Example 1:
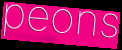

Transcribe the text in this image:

peons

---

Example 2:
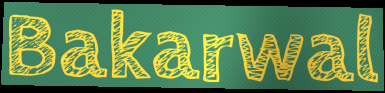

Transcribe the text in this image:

Bakarwal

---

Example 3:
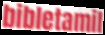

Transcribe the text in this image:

bibletamil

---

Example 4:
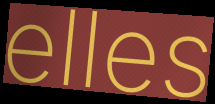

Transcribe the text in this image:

elles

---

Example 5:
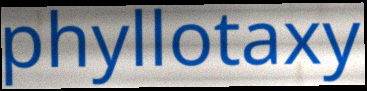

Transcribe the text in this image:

phyllotaxy